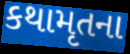
કથામૃતના